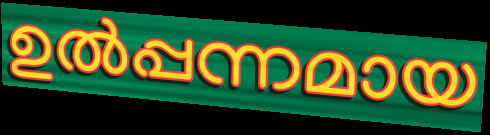
ഉൽപ്പന്നമായ